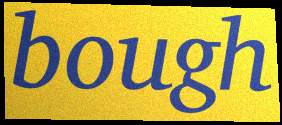
bough